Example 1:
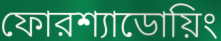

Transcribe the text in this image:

ফোরশ্যাডোয়িং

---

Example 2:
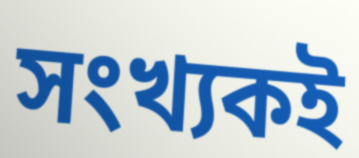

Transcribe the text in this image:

সংখ্যকই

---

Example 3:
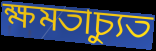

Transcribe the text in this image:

ক্ষমতাচ্যুত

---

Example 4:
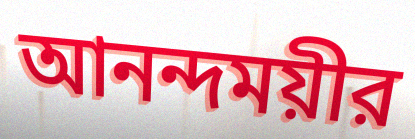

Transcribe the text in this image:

আনন্দময়ীর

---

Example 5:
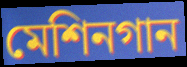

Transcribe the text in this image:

মেশিনগান